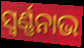
ସ୍ବର୍ଣ୍ଣନାଭ